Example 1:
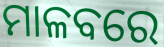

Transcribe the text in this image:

ମାଳବରେ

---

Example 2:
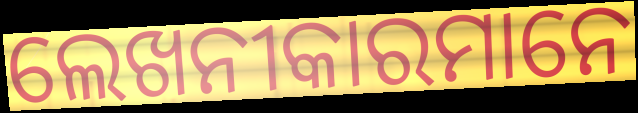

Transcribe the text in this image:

ଲେଖନୀକାରମାନେ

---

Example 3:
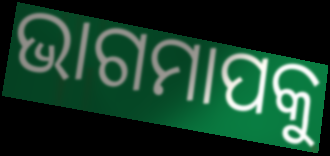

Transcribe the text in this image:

ଭାଗମାପକୁ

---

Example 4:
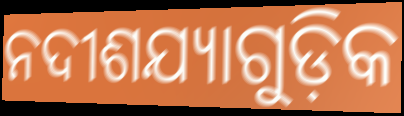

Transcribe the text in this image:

ନଦୀଶଯ୍ୟାଗୁଡ଼ିକ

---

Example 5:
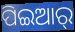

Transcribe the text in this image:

ପିଇଆର୍